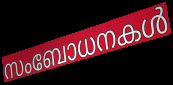
സംബോധനകൾ